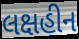
લક્ષહીન